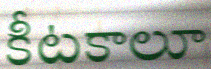
కీటకాలూ